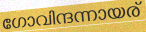
ഗോവിന്ദന്നായര്